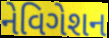
નેવિગેશન